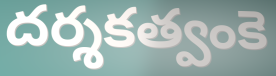
దర్శకత్వంకె